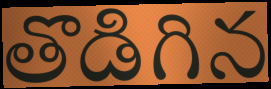
తొడిగిన